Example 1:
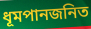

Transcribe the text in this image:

ধূমপানজনিত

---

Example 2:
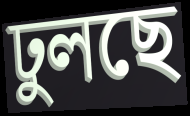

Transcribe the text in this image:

ঢুলছে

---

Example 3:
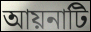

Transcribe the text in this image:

আয়নাটি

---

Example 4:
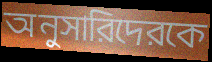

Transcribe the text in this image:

অনুসারিদেরকে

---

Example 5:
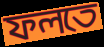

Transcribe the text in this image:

ফলতে